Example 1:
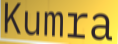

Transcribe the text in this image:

Kumra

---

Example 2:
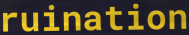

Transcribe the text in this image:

ruination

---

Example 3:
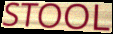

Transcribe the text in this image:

STOOL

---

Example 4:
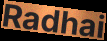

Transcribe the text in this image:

Radhai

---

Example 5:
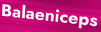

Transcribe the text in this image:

Balaeniceps